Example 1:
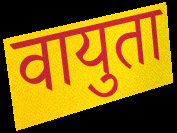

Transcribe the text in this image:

वायुता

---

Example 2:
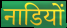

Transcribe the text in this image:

नाडियों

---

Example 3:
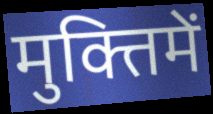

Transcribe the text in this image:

मुक्तिमें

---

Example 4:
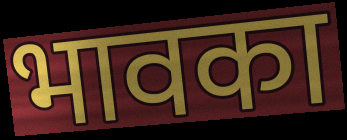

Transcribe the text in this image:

भावका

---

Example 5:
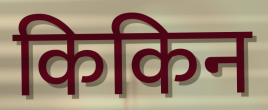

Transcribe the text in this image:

किकिन